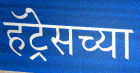
हॅट्रेसच्या